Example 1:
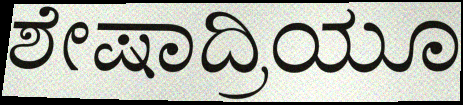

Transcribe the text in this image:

ಶೇಷಾದ್ರಿಯೂ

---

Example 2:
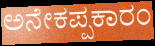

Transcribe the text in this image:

ಅನೇಕಪ್ಪಕಾರಂ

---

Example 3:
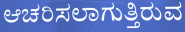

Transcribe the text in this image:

ಆಚರಿಸಲಾಗುತ್ತಿರುವ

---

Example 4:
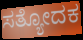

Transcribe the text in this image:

ಸತ್ಯೋದಕ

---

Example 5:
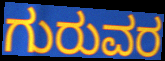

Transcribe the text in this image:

ಗುರುವರ